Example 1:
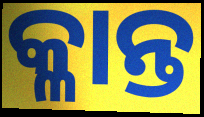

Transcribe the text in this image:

କ୍ଳାନ୍ତ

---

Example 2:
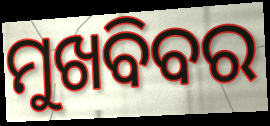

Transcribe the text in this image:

ମୁଖବିବର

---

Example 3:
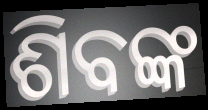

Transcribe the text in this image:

ଶିବଙ୍କ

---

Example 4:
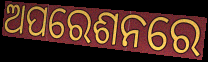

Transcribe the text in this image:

ଅପରେଶନରେ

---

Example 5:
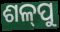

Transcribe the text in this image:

ଶଳ୍‍ପୁ